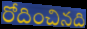
రోదించినది